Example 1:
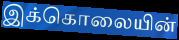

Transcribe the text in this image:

இக்கொலையின்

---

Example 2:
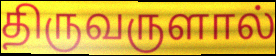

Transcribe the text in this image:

திருவருளால்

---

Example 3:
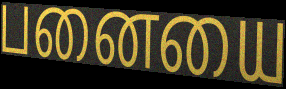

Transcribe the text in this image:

பனையை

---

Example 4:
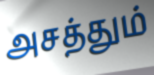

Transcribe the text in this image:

அசத்தும்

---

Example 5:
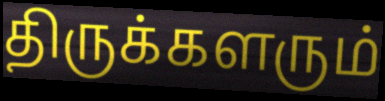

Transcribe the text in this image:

திருக்களரும்